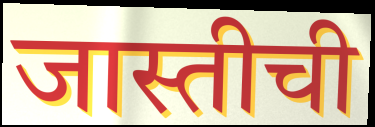
जास्तीची